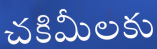
చకిమీలకు